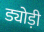
ड्योड़ी